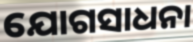
ଯୋଗସାଧନା